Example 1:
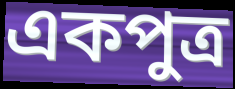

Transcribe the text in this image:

একপুত্র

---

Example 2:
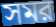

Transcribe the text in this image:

সমর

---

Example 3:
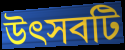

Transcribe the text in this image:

উৎসবটি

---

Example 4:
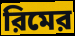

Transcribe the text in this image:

রিমের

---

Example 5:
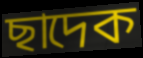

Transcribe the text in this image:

ছাদেক